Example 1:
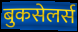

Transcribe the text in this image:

बुकसेलर्स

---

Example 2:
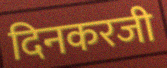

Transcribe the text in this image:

दिनकरजी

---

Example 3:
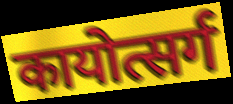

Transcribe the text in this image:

कायोत्सर्ग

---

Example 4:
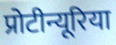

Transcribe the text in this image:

प्रोटीन्यूरिया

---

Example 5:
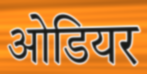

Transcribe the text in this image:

ओडियर